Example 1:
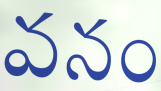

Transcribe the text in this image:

వనం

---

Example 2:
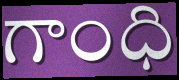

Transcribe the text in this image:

గాంధి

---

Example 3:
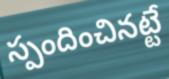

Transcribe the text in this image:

స్పందించినట్టే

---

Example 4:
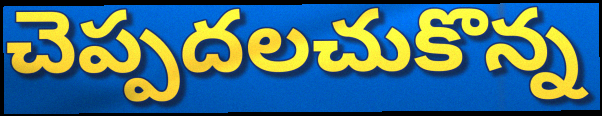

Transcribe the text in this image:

చెప్పదలచుకొన్న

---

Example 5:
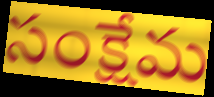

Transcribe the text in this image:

సంక్షేమ